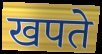
खपते